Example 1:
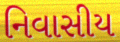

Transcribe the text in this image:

નિવાસીય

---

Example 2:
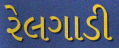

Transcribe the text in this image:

રેલગાડી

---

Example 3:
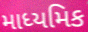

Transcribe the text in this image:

માધ્યમિક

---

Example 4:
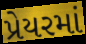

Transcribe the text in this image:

પ્રેયરમાં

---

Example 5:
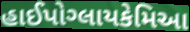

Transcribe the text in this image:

હાઈપોગ્લાયકેમિઆ